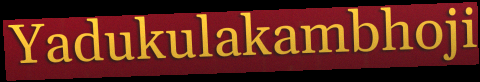
Yadukulakambhoji